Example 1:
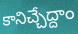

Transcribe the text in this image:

కానిచ్చేద్దాం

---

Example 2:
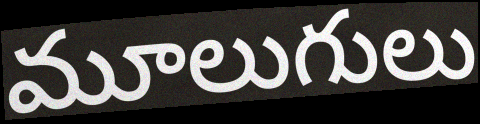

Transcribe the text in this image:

మూలుగులు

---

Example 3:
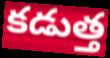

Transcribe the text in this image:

కడుత్త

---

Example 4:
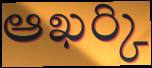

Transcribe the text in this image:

ఆఖర్కి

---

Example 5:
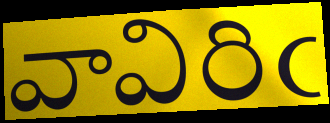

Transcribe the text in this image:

వావిరిఁ